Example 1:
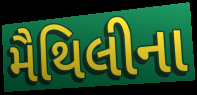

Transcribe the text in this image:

મૈથિલીના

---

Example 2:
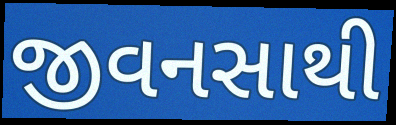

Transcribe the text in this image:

જીવનસાથી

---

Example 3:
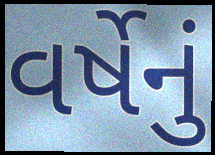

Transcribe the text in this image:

વર્ષેનું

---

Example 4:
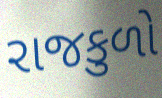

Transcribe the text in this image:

રાજકુળો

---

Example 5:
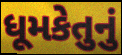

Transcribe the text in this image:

ધૂમકેતુનું